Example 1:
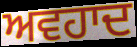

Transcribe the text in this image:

ਅਵਹਾਦ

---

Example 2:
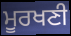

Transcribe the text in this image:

ਮੂਰਖਣੀ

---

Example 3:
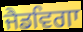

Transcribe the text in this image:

ਜੈਡਵਿਗਾ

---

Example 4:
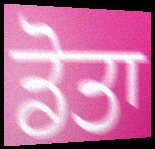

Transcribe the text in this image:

ਡੋਤਾ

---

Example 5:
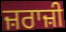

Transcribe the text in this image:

ਜ਼ਰਾਜ਼ੀ